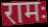
रामः